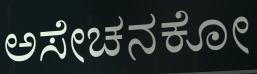
ಅಸೇಚನಕೋ